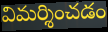
విమర్శించడం